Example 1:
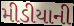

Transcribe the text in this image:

મીડીયાની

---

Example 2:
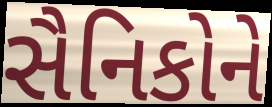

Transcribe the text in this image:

સૈનિકોને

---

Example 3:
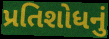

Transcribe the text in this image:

પ્રતિશોધનું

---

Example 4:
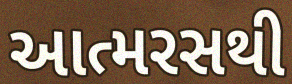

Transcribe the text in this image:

આત્મરસથી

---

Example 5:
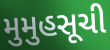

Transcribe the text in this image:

મુમુહસૂચી